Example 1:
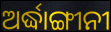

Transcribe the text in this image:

ଅର୍ଦ୍ଧାଙ୍ଗୀନୀ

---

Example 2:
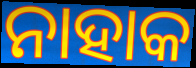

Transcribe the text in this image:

ନାହାକ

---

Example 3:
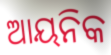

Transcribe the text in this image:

ଆୟନିକ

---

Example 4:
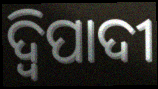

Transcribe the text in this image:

ଦ୍ୱିପାଦୀ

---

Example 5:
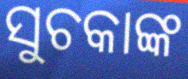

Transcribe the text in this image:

ସୁଚକାଙ୍କ